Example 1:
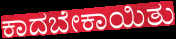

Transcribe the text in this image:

ಕಾದಬೇಕಾಯಿತು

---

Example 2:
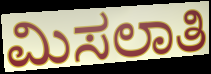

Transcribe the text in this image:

ಮಿಸಲಾತಿ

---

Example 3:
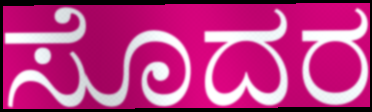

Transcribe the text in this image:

ಸೊದರ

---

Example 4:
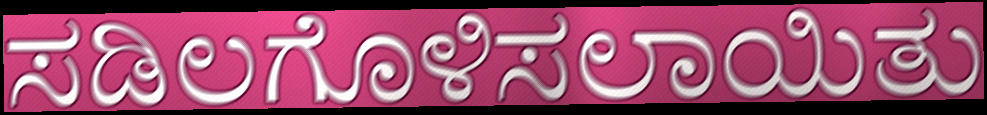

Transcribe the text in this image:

ಸಡಿಲಗೊಳಿಸಲಾಯಿತು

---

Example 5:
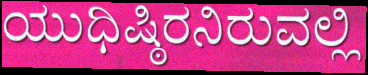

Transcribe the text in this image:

ಯುಧಿಷ್ಠಿರನಿರುವಲ್ಲಿ